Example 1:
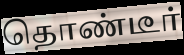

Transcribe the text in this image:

தொண்டீர்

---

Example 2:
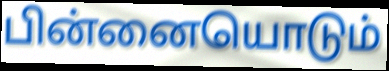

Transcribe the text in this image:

பின்னையொடும்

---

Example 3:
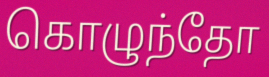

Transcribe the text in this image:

கொழுந்தோ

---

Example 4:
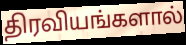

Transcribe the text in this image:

திரவியங்களால்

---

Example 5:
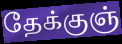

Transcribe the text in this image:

தேக்குஞ்